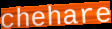
chehare